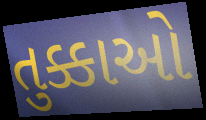
તુક્કાઓ